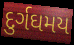
દુર્ગઘમય